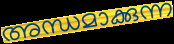
അന്ധമാക്കുന്ന